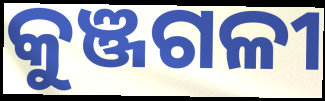
କୁଞ୍ଜଗଳୀ